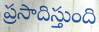
ప్రసాదిస్తుంది